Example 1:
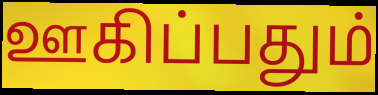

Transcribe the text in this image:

ஊகிப்பதும்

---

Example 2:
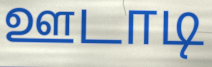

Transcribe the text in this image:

ஊடாடி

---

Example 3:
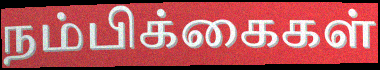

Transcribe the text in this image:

நம்பிக்கைகள்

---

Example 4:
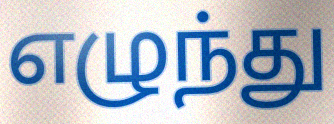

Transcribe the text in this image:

எழுந்து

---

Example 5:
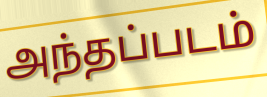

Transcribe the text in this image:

அந்தப்படம்